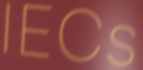
IECs